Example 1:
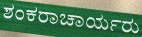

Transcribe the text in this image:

ಶಂಕರಾಚಾರ್ಯರು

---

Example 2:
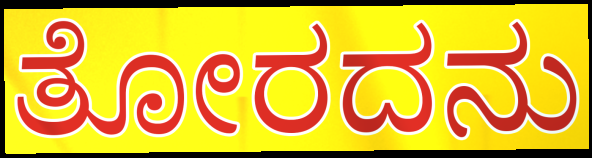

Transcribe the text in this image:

ತೋರದನು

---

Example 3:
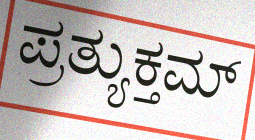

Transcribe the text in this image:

ಪ್ರತ್ಯುಕ್ತಮ್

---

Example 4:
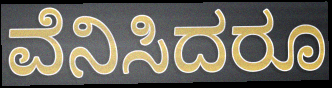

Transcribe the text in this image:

ವೆನಿಸಿದರೂ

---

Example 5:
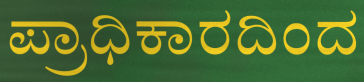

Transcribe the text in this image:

ಪ್ರಾಧಿಕಾರದಿಂದ